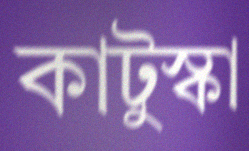
কাটুস্কা